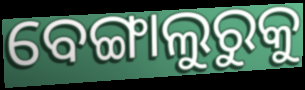
ବେଙ୍ଗାଲୁରୁକୁ